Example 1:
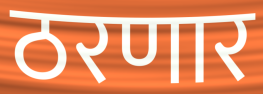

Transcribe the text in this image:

ठरणार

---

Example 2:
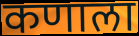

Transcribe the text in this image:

कणाला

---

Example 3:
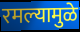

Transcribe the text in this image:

रमल्यामुळे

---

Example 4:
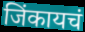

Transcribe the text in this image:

जिंकायचं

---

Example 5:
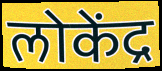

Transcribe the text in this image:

लोकेंद्र